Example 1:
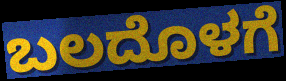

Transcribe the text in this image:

ಬಲದೊಳಗೆ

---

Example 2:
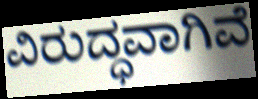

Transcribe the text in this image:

ವಿರುದ್ಧವಾಗಿವೆ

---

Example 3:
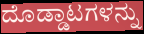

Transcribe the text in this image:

ದೊಡ್ಡಾಟಗಳನ್ನು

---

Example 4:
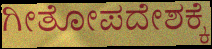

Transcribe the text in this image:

ಗೀತೋಪದೇಶಕ್ಕೆ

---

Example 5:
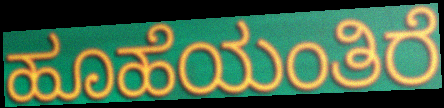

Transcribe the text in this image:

ಹೂಹೆಯಂತಿರೆ